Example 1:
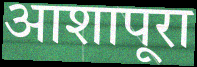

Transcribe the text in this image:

आशापूरा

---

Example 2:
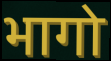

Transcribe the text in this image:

भागो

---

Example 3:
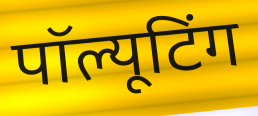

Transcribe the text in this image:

पॉल्यूटिंग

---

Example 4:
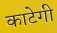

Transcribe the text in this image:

काटेगी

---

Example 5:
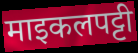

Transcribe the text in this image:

माइकलपट्टी